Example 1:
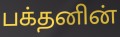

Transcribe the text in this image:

பக்தனின்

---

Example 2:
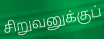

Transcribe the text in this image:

சிறுவனுக்குப்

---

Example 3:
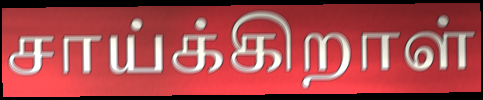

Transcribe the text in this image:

சாய்க்கிறாள்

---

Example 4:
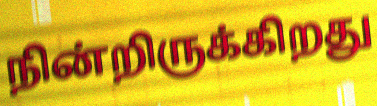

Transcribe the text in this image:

நின்றிருக்கிறது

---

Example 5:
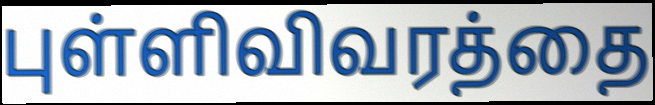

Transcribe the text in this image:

புள்ளிவிவரத்தை